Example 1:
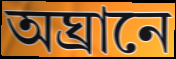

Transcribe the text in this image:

অঘ্রানে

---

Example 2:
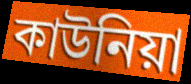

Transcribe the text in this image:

কাউনিয়া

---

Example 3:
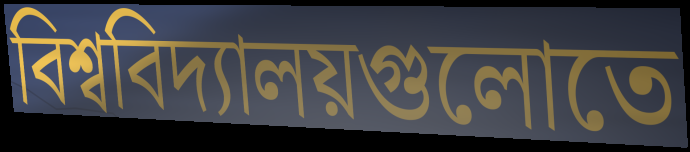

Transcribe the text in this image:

বিশ্ববিদ্যালয়গুলোতে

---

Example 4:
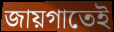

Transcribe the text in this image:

জায়গাতেই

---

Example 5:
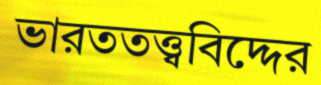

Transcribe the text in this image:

ভারততত্ত্ববিদ্দের